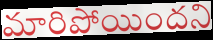
మారిపోయిందని